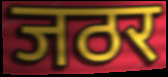
जठर